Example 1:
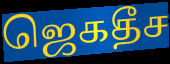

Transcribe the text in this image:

ஜெகதீச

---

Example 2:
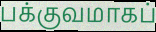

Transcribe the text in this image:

பக்குவமாகப்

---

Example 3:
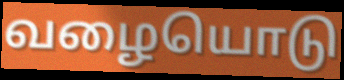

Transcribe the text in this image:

வழையொடு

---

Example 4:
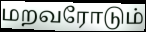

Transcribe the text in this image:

மறவரோடும்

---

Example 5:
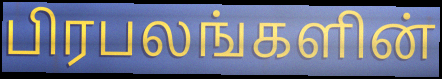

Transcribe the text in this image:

பிரபலங்களின்